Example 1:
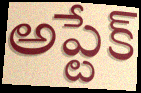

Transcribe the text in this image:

అప్టేక్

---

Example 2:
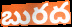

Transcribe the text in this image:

బురద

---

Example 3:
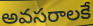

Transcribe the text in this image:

అవసరాలకే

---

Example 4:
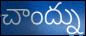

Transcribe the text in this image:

చాంద్ను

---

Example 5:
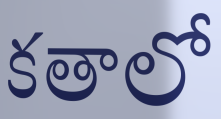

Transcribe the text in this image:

కతాలో